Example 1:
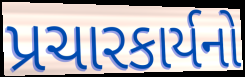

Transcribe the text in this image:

પ્રચારકાર્યનો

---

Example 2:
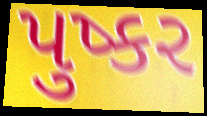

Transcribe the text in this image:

પુષ્કર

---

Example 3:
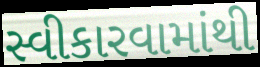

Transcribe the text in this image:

સ્વીકારવામાંથી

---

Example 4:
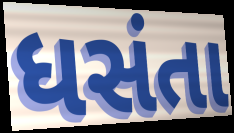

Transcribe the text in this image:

ધસંતા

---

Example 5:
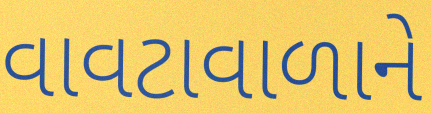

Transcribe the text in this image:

વાવટાવાળાને